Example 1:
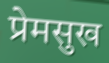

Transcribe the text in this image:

प्रेमसुख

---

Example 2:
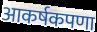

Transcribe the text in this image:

आकर्षकपणा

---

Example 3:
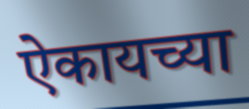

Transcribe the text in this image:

ऐकायच्या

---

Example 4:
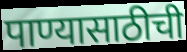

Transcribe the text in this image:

पाण्यासाठीची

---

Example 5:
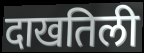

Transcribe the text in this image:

दाखतिली